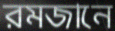
রমজানে